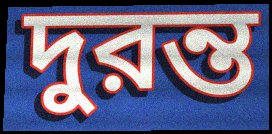
দুরন্ত